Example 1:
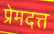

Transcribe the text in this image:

प्रेमदत्त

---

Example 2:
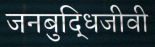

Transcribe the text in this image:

जनबुद्धिजीवी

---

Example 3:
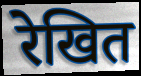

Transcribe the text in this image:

रेखित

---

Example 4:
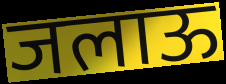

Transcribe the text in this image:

जलाऊ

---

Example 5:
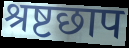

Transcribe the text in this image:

श्रष्टछाप